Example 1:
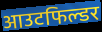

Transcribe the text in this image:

आउटफिल्डर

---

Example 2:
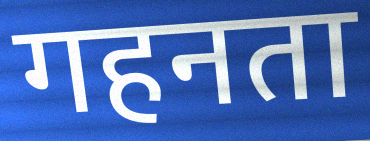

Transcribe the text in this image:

गहनता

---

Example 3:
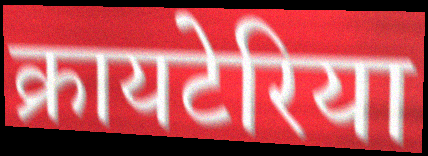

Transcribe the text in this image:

क्रायटेरिया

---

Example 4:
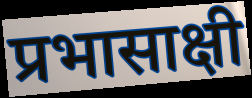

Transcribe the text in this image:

प्रभासाक्षी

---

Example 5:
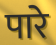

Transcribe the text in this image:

पारे